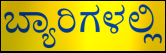
ಬ್ಯಾರಿಗಳಲ್ಲಿ